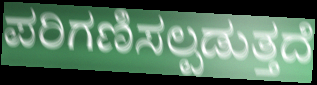
ಪರಿಗಣಿಸಲ್ಪಡುತ್ತದೆ